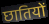
छातियों